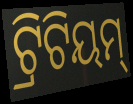
ଟ୍ରିଟିୟମ୍